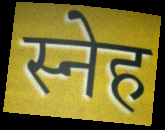
स्नेह